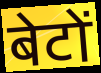
बेटों